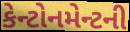
કેન્ટોનમેન્ટની